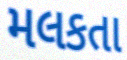
મલકતા